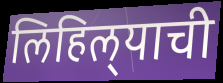
लिहिल्याची